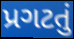
પ્રગટતું